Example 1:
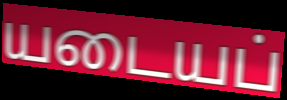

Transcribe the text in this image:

யடையப்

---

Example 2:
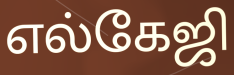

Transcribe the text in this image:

எல்கேஜி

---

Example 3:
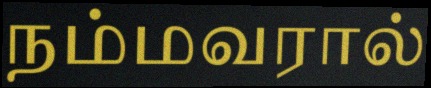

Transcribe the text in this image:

நம்மவரால்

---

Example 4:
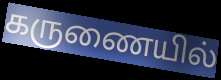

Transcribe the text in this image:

கருணையில்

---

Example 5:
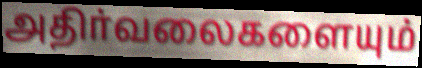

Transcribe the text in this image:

அதிர்வலைகளையும்